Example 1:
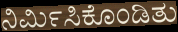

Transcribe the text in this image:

ನಿರ್ಮಿಸಿಕೊಂಡಿತು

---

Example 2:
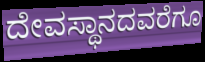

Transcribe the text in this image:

ದೇವಸ್ಥಾನದವರೆಗೂ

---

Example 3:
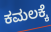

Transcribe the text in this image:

ಕಮಲಕ್ಕೆ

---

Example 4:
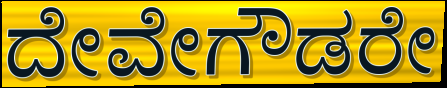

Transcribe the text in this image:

ದೇವೇಗೌಡರೇ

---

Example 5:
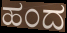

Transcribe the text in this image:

ಹಂದ